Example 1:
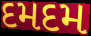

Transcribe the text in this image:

દમદમ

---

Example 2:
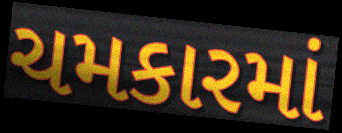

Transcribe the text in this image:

ચમકારમાં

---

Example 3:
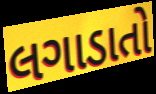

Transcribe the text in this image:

લગાડાતો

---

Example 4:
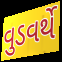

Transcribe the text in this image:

વુડવર્થે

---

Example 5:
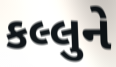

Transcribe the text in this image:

કલ્લુને